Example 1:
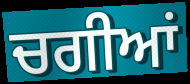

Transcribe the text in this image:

ਚਗੀਆਂ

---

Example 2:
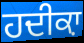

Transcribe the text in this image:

ਹਦੀਕ਼ਾ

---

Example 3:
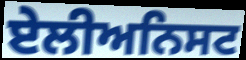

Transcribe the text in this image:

ਏਲੀਅਨਿਸਟ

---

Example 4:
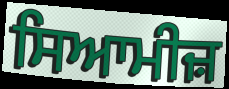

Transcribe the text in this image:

ਸਿਆਮੀਜ਼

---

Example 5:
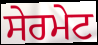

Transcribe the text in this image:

ਸੇਰਮੇਟ